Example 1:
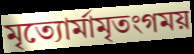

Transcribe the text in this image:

মৃত্যোর্মামৃতংগময়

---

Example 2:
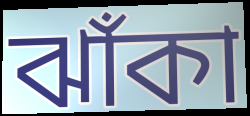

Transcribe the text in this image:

ঝাঁকা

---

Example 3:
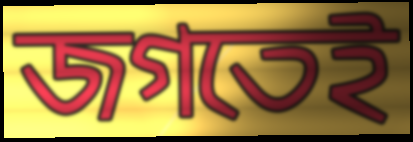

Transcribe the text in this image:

জগতেই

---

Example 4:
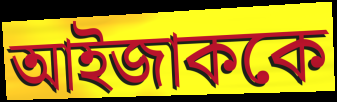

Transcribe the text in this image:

আইজাককে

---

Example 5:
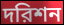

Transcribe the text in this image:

দরিশন